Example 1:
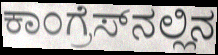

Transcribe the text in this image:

ಕಾಂಗ್ರೆಸ್‌ನಲ್ಲಿನ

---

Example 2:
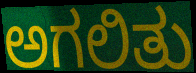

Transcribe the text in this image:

ಅಗಲಿತು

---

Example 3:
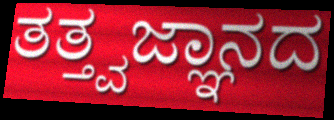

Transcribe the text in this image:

ತತ್ತ್ವಜ್ಞಾನದ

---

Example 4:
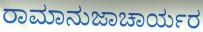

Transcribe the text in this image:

ರಾಮಾನುಜಾಚಾರ್ಯರ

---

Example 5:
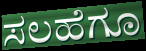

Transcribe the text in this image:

ಸಲಹೆಗೂ